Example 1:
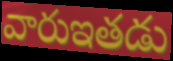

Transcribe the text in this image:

వారుఇతడు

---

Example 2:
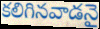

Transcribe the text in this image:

కలిగినవాడనై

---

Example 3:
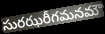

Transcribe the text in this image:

సురఝరీగమనమౌ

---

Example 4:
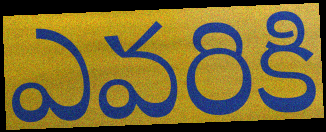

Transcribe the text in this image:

ఎవరికి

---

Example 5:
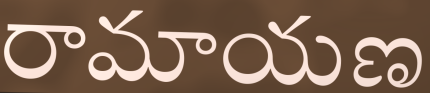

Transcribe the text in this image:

రామాయణ